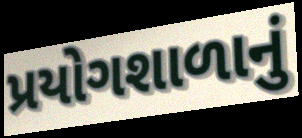
પ્રયોગશાળાનું